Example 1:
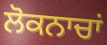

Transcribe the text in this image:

ਲੋਕਨਾਚਾਂ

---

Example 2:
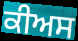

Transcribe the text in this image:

ਕੀਅਸ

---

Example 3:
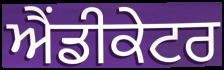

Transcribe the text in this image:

ਐਂਡੀਕੇਟਰ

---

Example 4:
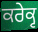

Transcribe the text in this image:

ਕਰੇਕ੍ਟ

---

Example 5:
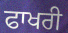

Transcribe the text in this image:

ਫਾਖਰੀ